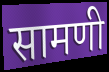
सामणी